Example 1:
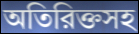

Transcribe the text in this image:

অতিরিক্তসহ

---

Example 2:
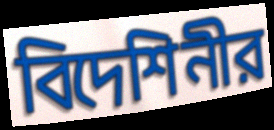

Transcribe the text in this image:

বিদেশিনীর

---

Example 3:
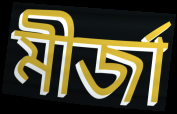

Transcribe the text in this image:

মীর্জা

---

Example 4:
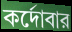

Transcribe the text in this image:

কর্দোবার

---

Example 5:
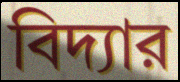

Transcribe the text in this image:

বিদ্যার